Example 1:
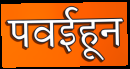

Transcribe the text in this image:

पवईहून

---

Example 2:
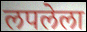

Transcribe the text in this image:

लपलेला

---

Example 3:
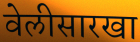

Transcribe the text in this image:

वेलीसारखा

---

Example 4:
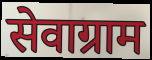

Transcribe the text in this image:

सेवाग्राम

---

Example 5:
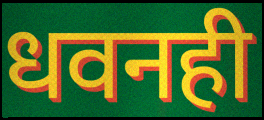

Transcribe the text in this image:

धवनही